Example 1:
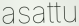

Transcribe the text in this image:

asattu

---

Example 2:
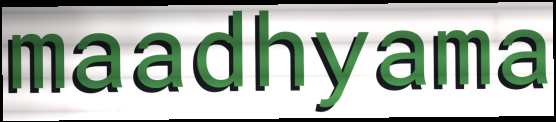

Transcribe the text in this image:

maadhyama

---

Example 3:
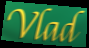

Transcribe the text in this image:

Vlad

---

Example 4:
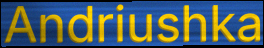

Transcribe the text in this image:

Andriushka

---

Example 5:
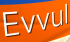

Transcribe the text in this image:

Evvul